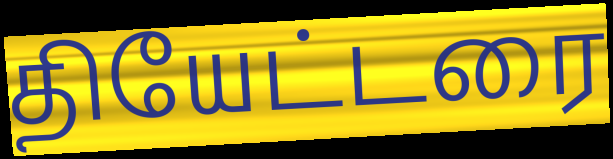
தியேட்டரை